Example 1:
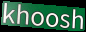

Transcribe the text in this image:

khoosh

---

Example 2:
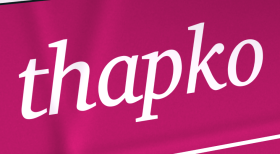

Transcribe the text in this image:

thapko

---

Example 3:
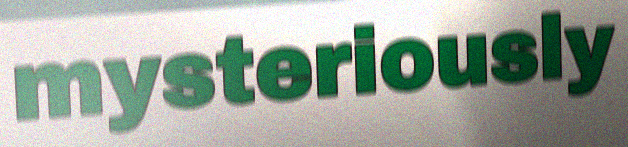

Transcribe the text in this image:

mysteriously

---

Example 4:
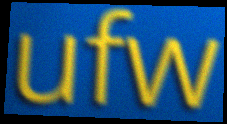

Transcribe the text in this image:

ufw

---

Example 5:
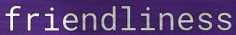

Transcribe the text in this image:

friendliness